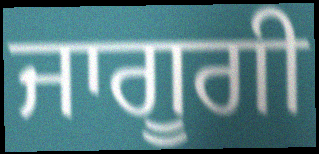
ਜਾਗੂਗੀ